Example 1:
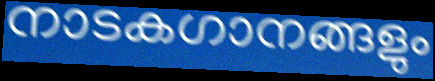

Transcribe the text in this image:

നാടകഗാനങ്ങളും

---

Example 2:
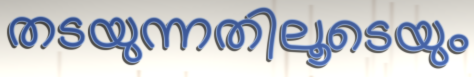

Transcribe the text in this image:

തടയുന്നതിലൂടെയും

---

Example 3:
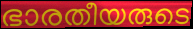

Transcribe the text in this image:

ഭാരതീയരുടെ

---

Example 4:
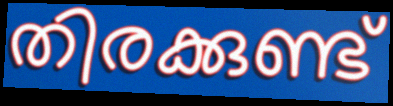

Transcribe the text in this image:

തിരക്കുണ്ട്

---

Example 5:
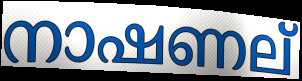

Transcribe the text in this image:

നാഷണല്